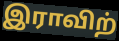
இராவிற்